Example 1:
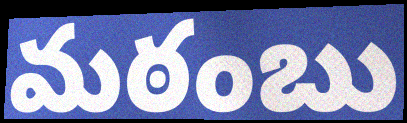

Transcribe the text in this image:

మఠంబు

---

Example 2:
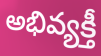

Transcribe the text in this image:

అభివ్యక్తీ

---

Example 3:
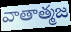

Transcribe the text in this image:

వాతాత్మజ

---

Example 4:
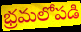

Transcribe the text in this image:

భ్రమలోపడి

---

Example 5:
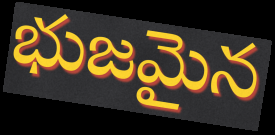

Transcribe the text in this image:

భుజమైన